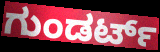
ಗುಂಡರ್ಟ್